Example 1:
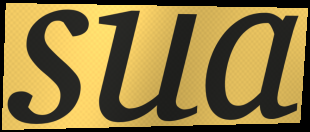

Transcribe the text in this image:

sua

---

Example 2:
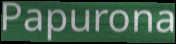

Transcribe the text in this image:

Papurona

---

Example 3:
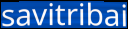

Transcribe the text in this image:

savitribai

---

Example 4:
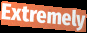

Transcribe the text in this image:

Extremely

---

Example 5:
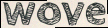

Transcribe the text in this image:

wove